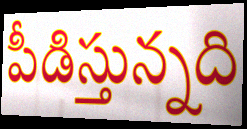
పీడిస్తున్నది